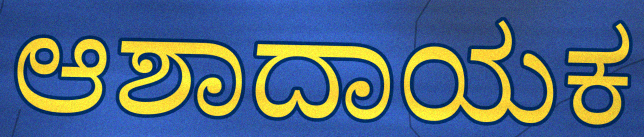
ಆಶಾದಾಯಕ